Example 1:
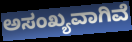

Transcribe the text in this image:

ಅಸಂಖ್ಯವಾಗಿವೆ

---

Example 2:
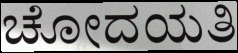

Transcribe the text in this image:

ಚೋದಯತಿ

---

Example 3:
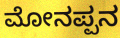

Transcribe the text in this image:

ಮೋನಪ್ಪನ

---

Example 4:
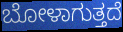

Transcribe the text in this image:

ಬೋಳಾಗುತ್ತದೆ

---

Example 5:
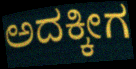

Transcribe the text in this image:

ಅದಕ್ಕೀಗ